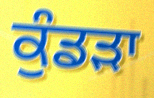
ਕੁੰਡੜਾ